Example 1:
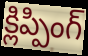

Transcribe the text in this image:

క్లిప్పింగ్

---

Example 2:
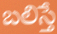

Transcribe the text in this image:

బలిస్తే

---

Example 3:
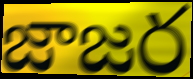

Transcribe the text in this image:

జాజర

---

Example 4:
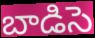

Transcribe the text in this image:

బాడిసె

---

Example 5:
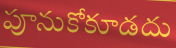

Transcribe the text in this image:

పూనుకోకూడదు